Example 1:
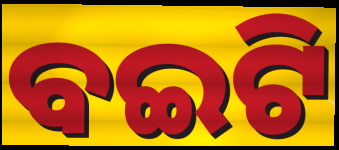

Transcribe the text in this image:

ବଇଟି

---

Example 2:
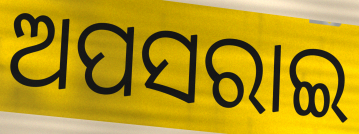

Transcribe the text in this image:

ଅପସରାଇ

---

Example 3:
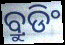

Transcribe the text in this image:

ବ୍ରୁଡିଂ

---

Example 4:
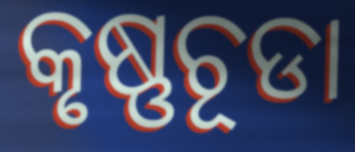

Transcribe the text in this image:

କୃଷ୍ଣଚୂଡା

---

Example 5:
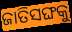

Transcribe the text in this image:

ଜାତିସଙ୍ଘକୁ